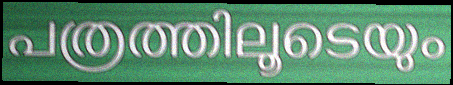
പത്രത്തിലൂടെയും